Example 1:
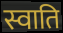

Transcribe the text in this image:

स्वाति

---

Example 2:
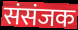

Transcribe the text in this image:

संसंजक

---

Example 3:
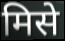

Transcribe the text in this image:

मिसे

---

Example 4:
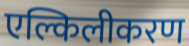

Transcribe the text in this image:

एल्किलीकरण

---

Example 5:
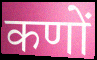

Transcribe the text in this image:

कणों